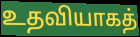
உதவியாகத்